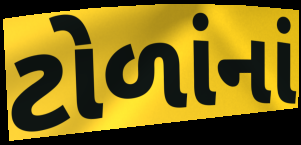
ટોળાંનાં